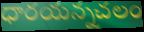
ధారయన్నచలం